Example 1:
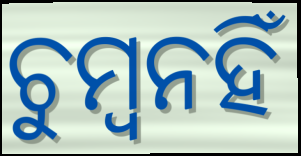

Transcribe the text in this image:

ଚୁମ୍ବନହିଁ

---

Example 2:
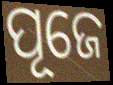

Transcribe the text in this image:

ପୂଜେ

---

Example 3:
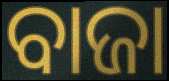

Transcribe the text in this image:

ବାଜା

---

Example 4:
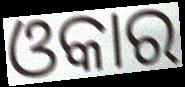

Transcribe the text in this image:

ଓକାର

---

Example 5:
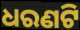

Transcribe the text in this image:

ଧରଣଟି